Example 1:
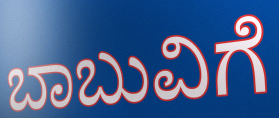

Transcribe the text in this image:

ಬಾಬುವಿಗೆ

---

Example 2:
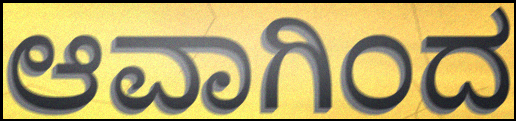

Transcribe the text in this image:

ಆವಾಗಿಂದ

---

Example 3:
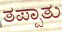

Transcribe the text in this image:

ತಪ್ಪಾತು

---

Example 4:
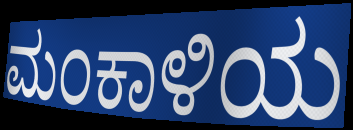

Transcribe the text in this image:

ಮಂಕಾಳಿಯ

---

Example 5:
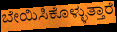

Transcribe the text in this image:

ಬೇಯಿಸಿಕೊಳ್ಳುತ್ತಾರೆ